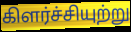
கிளர்ச்சியுற்று